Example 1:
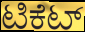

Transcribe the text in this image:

ಟಿಕೆಟ್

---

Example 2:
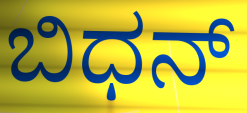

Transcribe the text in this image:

ಬಿಧನ್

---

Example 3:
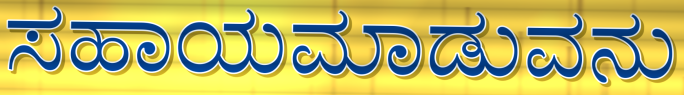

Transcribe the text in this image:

ಸಹಾಯಮಾಡುವನು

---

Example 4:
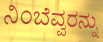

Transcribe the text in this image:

ನಿಂಬೆವ್ವರನ್ನು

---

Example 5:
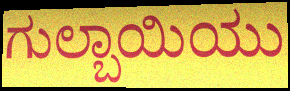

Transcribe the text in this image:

ಗುಲ್ಬಾಯಿಯು